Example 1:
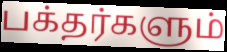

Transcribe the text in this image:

பக்தர்களும்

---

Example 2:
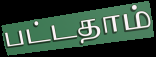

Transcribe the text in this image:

பட்டதாம்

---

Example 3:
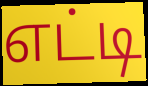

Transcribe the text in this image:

எட்டி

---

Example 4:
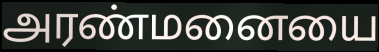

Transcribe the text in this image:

அரண்மனையை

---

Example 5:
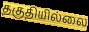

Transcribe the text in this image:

தகுதியில்லை